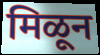
मिळून